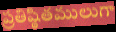
ప్రతిష్ఠితములుగా